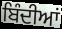
ਬਿੰਦੀਆਂ